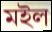
মইল